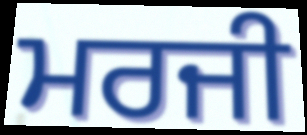
ਮਰਜੀ